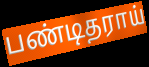
பண்டிதராய்